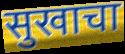
सुखाचा